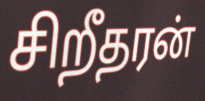
சிறீதரன்